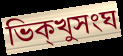
ভিক্খুসংঘ